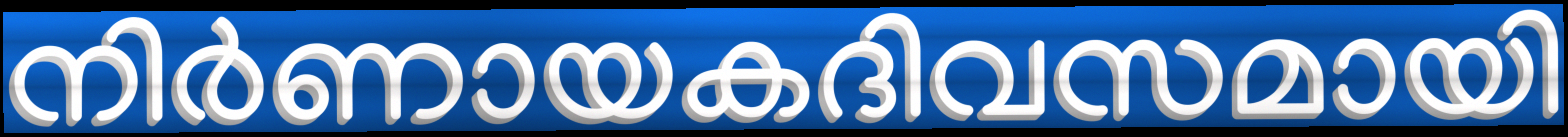
നിർണായകദിവസമായി